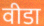
वीडा